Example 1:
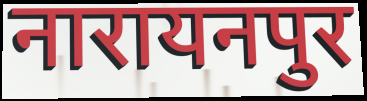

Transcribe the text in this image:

नारायनपुर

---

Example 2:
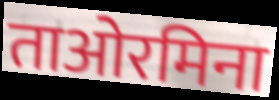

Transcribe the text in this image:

ताओरमिना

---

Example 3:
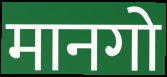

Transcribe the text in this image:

मानगो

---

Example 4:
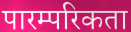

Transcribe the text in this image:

पारम्परिकता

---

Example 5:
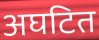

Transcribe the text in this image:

अघटित